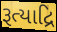
રૂત્યાદ્રિ